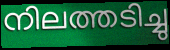
നിലത്തടിച്ചു